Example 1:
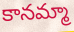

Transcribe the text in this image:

కానమ్మా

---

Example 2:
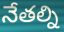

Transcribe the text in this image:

నేతల్ని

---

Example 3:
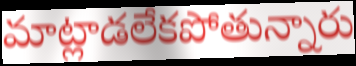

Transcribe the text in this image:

మాట్లాడలేకపోతున్నారు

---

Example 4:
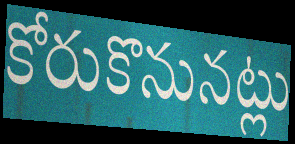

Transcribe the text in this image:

కోరుకొనునట్లు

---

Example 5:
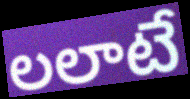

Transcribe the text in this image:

లలాటే